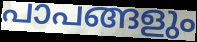
പാപങ്ങളും